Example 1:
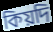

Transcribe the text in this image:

কিয়দি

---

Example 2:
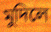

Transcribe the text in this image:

মুদিলে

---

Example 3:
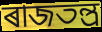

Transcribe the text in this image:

ৰাজতন্ত্ৰ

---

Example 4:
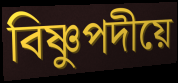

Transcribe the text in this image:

বিষ্ণুপদীয়ে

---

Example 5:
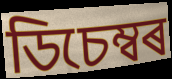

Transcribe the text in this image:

ডিচেম্বৰ